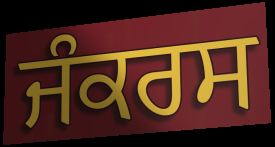
ਜੰਕਰਸ